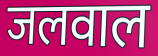
जलवाल